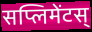
सप्लिमेंटस्